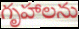
గృహాలను